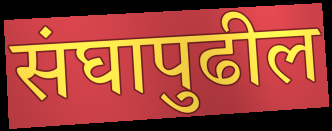
संघापुढील